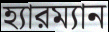
হ্যারম্যান